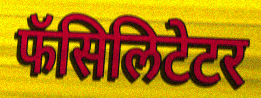
फॅसिलिटेटर